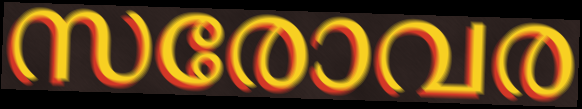
സരോവര